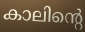
കാലിന്റെ